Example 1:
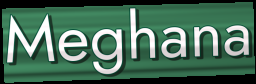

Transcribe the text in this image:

Meghana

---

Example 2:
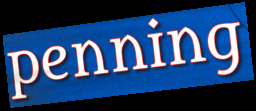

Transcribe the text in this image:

penning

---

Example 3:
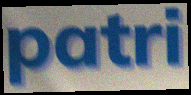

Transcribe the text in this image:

patri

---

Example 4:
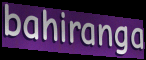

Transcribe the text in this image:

bahiranga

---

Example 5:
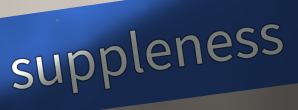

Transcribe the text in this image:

suppleness